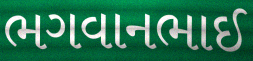
ભગવાનભાઈ